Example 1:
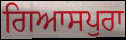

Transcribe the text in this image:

ਗਿਆਸਪੁਰਾ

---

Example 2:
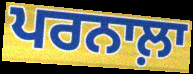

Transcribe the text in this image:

ਪਰਨਾਲ਼ਾ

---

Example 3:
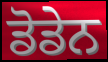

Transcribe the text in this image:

ਡੋਡੇਨ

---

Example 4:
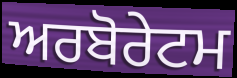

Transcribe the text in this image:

ਅਰਬੋਰੇਟਮ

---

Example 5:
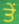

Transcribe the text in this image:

ਤੇੰ